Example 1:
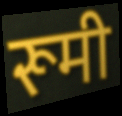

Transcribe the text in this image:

रूमी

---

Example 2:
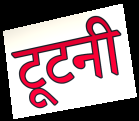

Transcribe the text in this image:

टूटनी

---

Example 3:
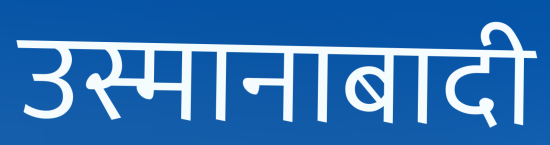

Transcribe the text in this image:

उस्मानाबादी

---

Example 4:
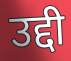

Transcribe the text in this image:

उद्दी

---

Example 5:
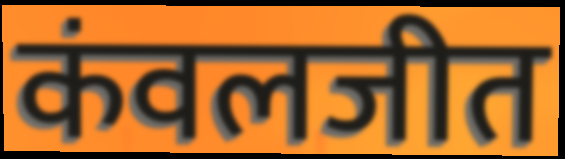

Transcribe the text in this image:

कंवलजीत